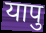
यापु